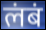
लंबं